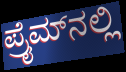
ಪ್ರೈಮ್‌ನಲ್ಲಿ